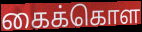
கைக்கொள